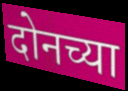
दोनच्या